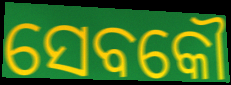
ସେବକୌ